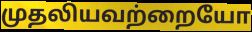
முதலியவற்றையோ